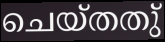
ചെയ്തതു്